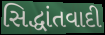
સિદ્ધાંતવાદી